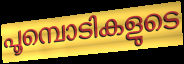
പൂമ്പൊടികളുടെ